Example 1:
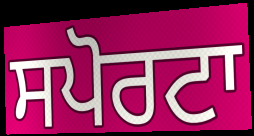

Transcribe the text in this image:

ਸਪੋਰਟਾ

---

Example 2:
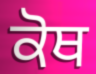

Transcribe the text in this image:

ਕੋਥ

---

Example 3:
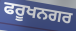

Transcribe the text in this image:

ਫਰੂਖਨਗਰ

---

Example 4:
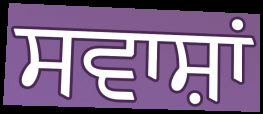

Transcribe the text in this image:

ਸਵਾਸ਼ਾਂ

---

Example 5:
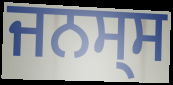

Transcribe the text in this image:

ਜਨਸ੍ਸ